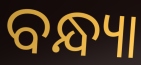
ବନ୍ଧ୍ୟା